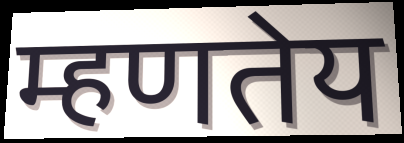
म्हणतेय